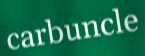
carbuncle